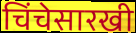
चिंचेसारखी